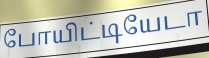
போயிட்டியேடா